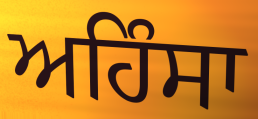
ਅਹਿੰਸਾ